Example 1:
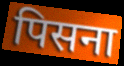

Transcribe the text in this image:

पिसना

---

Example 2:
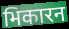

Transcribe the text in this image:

भिकारन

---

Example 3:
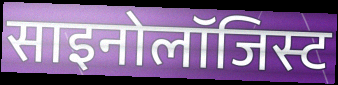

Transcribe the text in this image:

साइनोलॉजिस्ट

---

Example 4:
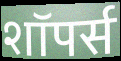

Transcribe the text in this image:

शॉपर्स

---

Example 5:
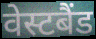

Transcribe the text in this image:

वेस्टबैंड